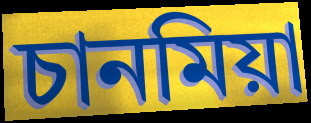
চানমিয়া